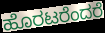
ಹೊರಟರೆಂದರೆ